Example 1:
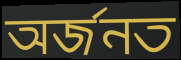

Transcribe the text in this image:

অৰ্জনত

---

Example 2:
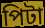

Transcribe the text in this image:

পিটা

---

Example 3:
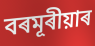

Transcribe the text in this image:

বৰমূৰীয়াৰ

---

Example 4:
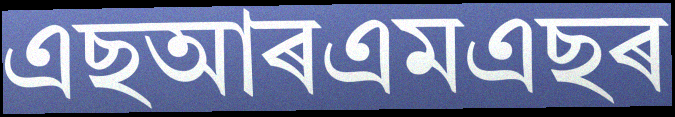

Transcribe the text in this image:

এছআৰএমএছৰ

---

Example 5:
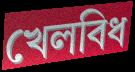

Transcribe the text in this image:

খেলবিধ